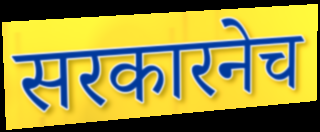
सरकारनेच